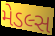
મેડલ્સ